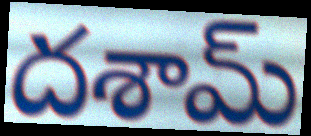
దశామ్